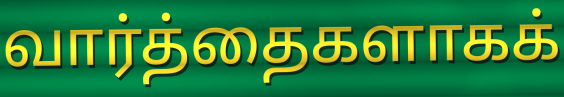
வார்த்தைகளாகக்